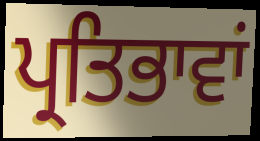
ਪ੍ਰਤਿਭਾਵਾਂ